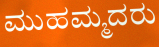
ಮುಹಮ್ಮದರು